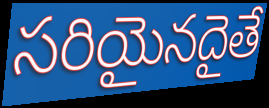
సరియైనదైతే